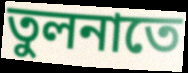
তুলনাতে